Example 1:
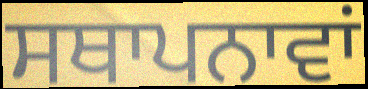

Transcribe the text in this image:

ਸਥਾਪਨਾਵਾਂ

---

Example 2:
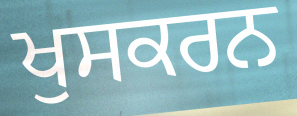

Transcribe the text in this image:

ਖੁਸਕਰਨ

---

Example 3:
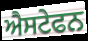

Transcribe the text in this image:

ਐਸਟੇਫਨ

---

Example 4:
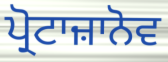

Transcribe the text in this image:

ਪ੍ਰੋਟਾਜ਼ਾਨੋਵ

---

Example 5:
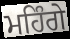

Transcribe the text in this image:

ਮਹਿੰਗੇ